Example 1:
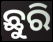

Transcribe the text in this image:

ଛୁରି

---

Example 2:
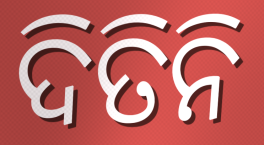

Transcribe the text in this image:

ଦିତିନି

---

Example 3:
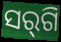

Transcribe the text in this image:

ସର୍‌ଗି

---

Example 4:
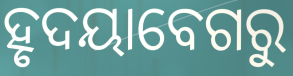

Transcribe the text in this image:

ହୃଦୟାବେଗରୁ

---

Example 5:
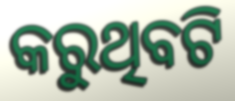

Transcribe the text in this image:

କରୁଥିବଟି